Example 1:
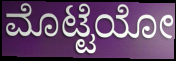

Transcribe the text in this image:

ಮೊಟ್ಟೆಯೋ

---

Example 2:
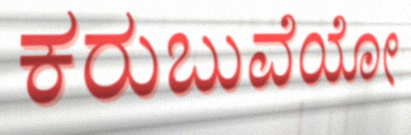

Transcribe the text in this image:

ಕರುಬುವೆಯೋ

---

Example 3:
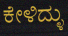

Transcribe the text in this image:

ಕೇಳಿದ್ಳು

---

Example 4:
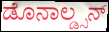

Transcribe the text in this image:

ಡೊನಾಲ್ಡ್ಸನ್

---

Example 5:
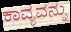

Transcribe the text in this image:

ಕಾವ್ಯವನ್ನು